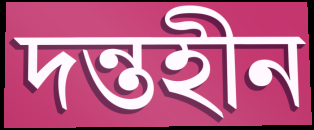
দন্তহীন